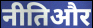
नीतिऔर